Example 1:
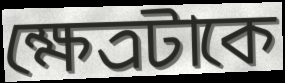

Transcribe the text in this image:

ক্ষেত্রটাকে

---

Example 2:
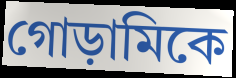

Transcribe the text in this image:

গোড়ামিকে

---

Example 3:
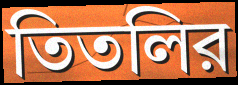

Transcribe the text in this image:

তিতলির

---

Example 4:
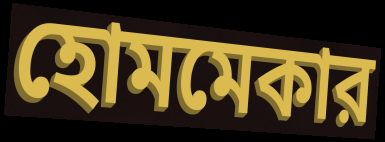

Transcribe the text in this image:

হোমমেকার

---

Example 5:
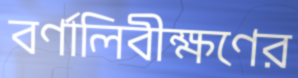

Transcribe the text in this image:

বর্ণালিবীক্ষণের